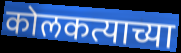
कोलकत्याच्या